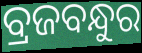
ବ୍ରଜବନ୍ଧୁର